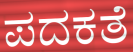
ಪದಕತೆ